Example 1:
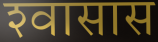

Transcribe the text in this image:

श्वासास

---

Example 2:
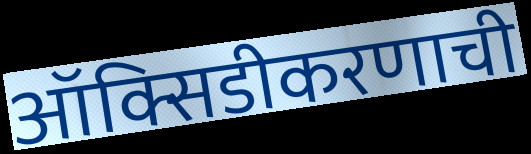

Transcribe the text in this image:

ऑक्सिडीकरणाची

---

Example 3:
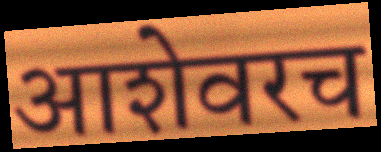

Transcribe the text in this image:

आशेवरच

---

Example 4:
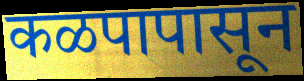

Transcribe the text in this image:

कळपापासून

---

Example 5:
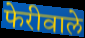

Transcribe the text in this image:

फेरीवाले